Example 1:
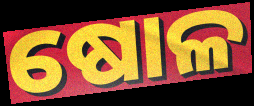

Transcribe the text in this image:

ଷୋଳ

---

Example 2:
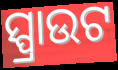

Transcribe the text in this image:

ସ୍ପ୍ରାଉଟ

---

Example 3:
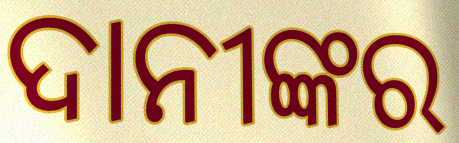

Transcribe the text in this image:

ଦାନୀଙ୍କର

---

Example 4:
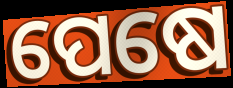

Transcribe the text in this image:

ପେଷେ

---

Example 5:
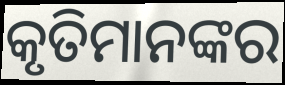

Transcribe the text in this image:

କୃତିମାନଙ୍କର